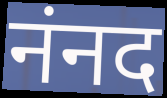
नंनद